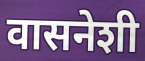
वासनेशी